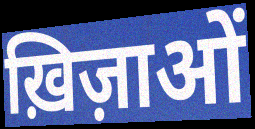
ख़िज़ाओं